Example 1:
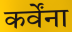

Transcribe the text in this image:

कर्वेंना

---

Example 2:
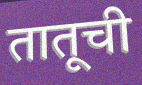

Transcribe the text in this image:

तातूची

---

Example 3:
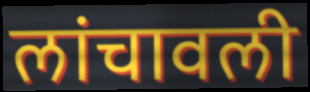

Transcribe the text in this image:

लांचावली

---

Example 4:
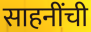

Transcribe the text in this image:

साहनींची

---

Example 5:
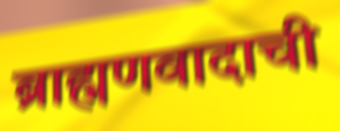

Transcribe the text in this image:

ब्राह्मणवादाची